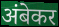
अंबेकर